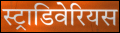
स्ट्राडिवेरियस